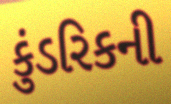
કુંડરિકની